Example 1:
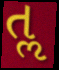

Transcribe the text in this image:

તૢ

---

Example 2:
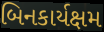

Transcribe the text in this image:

બિનકાર્યક્ષમ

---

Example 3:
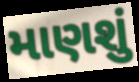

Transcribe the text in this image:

માણશું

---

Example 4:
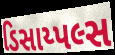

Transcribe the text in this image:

ડિસાય્પલ્સ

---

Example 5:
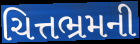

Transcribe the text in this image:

ચિત્તભ્રમની